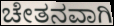
ಚೇತನವಾಗಿ